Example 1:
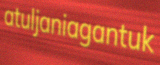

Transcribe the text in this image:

atuljaniagantuk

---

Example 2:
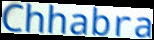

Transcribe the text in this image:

Chhabra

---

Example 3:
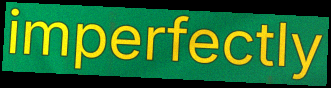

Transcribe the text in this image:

imperfectly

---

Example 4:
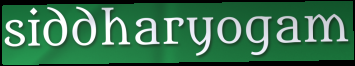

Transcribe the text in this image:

siddharyogam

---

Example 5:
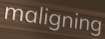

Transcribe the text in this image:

maligning